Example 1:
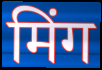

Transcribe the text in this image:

मिंग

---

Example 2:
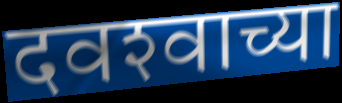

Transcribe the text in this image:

दवश्वाच्या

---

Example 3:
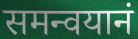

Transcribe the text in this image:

समन्वयानं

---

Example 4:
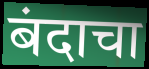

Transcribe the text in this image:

बंदाचा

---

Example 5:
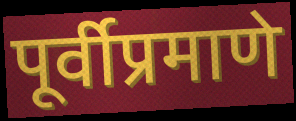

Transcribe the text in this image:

पूर्वीप्रमाणे